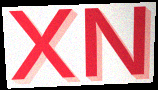
XN